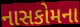
નાસકોમના